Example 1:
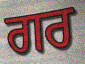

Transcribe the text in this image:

ਗਰ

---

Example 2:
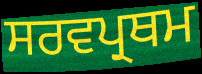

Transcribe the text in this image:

ਸਰਵਪ੍ਰਥਮ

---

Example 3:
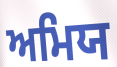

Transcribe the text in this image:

ਅਮਿਯ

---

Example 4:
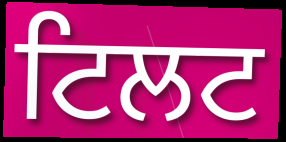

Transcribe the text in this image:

ਟਿਲਟ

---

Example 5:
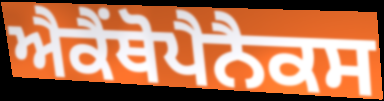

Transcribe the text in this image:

ਐਕੈਂਥੋਪੈਨੈਕਸ